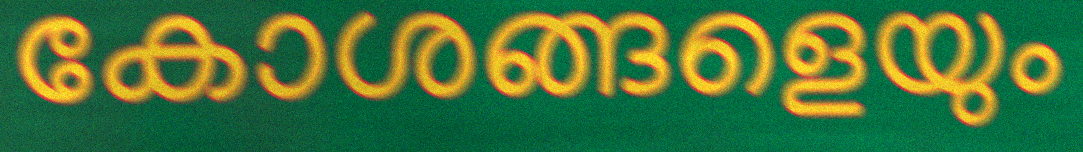
കോശങ്ങളെയും